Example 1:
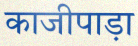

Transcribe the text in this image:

काजीपाड़ा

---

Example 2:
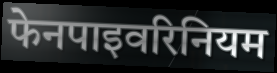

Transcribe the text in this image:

फेनपाइवरिनियम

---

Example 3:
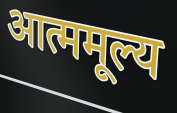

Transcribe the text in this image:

आत्ममूल्य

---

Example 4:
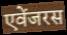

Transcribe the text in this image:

एवेंजरस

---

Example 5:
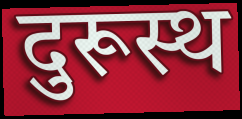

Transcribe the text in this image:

दुरूस्थ